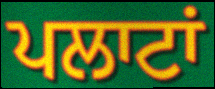
ਪਲਾਟਾਂ